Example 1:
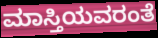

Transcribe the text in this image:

ಮಾಸ್ತಿಯವರಂತೆ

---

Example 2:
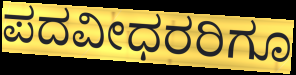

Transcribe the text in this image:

ಪದವೀಧರರಿಗೂ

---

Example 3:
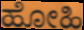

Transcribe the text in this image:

ಹೋಹಿ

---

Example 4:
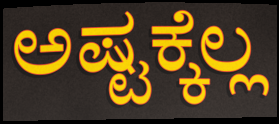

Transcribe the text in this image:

ಅಷ್ಟಕ್ಕೆಲ್ಲ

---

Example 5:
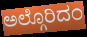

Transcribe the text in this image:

ಅಲ್ಗೊರಿದಂ